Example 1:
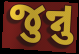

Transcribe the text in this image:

જુન્નુ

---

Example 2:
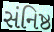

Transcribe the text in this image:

સંનિષ્ઠ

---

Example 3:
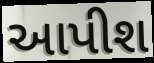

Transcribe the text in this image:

આપીશ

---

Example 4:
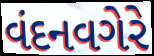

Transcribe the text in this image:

વંદનવગેરે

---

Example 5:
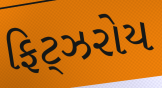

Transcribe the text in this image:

ફિટ્ઝરોય